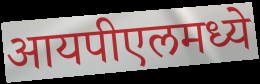
आयपीएलमध्ये